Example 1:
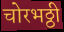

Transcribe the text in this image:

चोरभठ्ठी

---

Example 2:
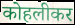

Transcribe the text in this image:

कोहलीकर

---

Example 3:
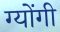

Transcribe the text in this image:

ग्योंगी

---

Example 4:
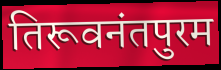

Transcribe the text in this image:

तिरूवनंतपुरम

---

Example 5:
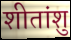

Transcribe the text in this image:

शीतांशु